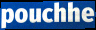
pouchhe